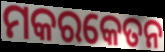
ମକରକେତନ